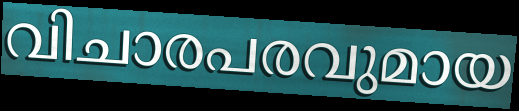
വിചാരപരവുമായ